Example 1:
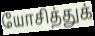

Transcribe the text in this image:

யோசித்துக்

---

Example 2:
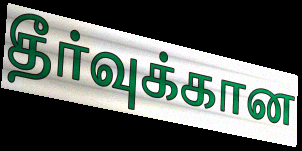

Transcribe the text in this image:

தீர்வுக்கான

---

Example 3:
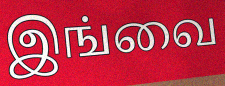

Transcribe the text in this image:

இங்வை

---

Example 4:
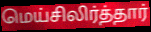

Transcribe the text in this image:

மெய்சிலிர்த்தார்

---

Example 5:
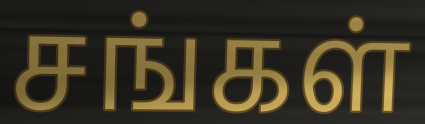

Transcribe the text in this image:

சங்கள்